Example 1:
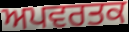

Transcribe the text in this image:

ਅਪਵਰਤਕ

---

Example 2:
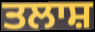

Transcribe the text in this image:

ਤਲਾਸ਼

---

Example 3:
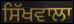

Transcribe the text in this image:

ਸਿੱਖਵਾਲਾ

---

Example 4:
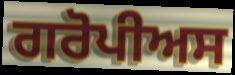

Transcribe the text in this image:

ਗਰੋਪੀਅਸ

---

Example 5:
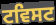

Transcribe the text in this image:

ਟਵਿਸਟ